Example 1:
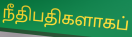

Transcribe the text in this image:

நீதிபதிகளாகப்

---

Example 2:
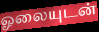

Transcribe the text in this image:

ஓலையுடன்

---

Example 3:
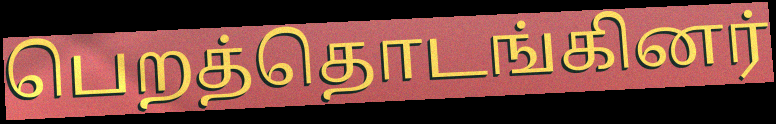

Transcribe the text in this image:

பெறத்தொடங்கினர்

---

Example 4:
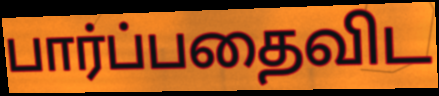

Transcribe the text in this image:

பார்ப்பதைவிட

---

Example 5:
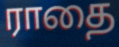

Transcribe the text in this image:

ராதை